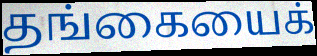
தங்கையைக்